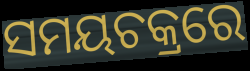
ସମୟଚକ୍ରରେ